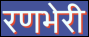
रणभेरी